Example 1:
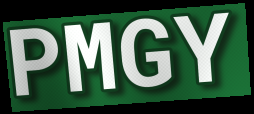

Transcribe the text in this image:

PMGY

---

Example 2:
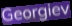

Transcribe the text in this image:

Georgiev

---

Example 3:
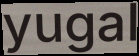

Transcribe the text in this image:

yugal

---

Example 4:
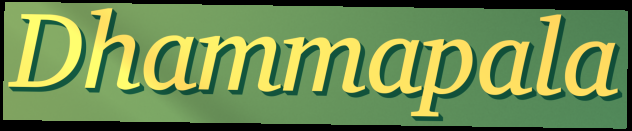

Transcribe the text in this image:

Dhammapala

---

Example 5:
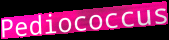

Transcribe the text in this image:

Pediococcus